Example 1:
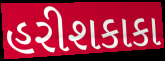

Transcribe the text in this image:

હરીશકાકા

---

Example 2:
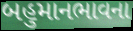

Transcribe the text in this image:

બહુમાનભાવના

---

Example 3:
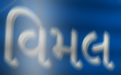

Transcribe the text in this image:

વિમલ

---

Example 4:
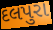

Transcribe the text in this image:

દલપુરા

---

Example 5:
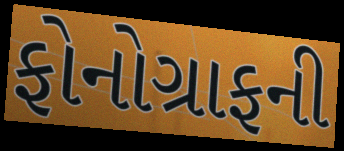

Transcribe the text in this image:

ફોનોગ્રાફની